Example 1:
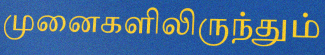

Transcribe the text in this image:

முனைகளிலிருந்தும்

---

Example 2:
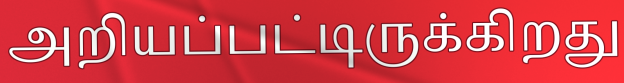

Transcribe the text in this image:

அறியப்பட்டிருக்கிறது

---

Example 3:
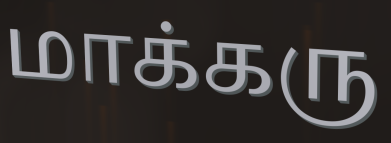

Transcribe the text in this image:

மாக்கரு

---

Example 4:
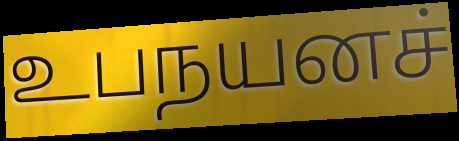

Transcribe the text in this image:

உபநயனச்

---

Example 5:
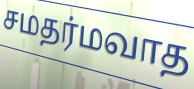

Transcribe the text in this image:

சமதர்மவாத